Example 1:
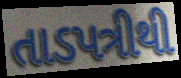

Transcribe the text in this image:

તાડપત્રીથી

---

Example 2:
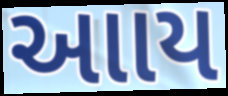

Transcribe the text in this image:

આાય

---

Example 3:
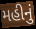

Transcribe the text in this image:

મહીનું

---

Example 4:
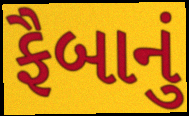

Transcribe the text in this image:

ફૈબાનું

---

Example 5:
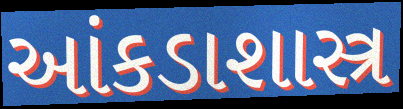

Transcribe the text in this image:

આંકડાશાસ્ત્ર